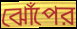
ঝোঁপের